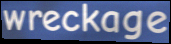
wreckage